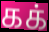
கக்